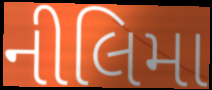
નીલિમા